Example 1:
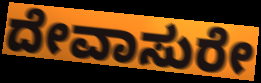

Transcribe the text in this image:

ದೇವಾಸುರೇ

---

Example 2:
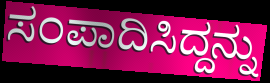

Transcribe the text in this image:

ಸಂಪಾದಿಸಿದ್ದನ್ನು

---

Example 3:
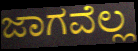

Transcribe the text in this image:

ಜಾಗವೆಲ್ಲ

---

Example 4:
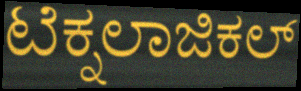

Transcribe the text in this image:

ಟೆಕ್ನಲಾಜಿಕಲ್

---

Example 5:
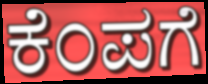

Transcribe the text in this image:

ಕೆಂಪಗೆ